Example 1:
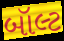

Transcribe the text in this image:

બૉલ્ટ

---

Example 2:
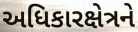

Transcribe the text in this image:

અધિકારક્ષેત્રને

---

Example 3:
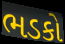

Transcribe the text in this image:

ભડકો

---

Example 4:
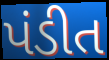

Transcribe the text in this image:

પંડીત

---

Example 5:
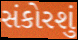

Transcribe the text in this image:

સંકોરશું